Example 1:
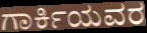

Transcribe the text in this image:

ಗಾರ್ಕಿಯವರ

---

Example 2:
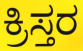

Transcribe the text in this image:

ಕ್ರಿಸ್ತರ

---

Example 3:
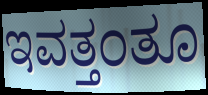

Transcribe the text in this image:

ಇವತ್ತಂತೂ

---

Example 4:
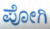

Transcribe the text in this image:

ಪೋಗಿ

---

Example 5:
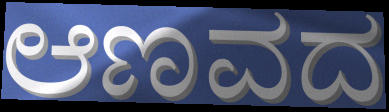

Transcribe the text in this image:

ಆಣವದ